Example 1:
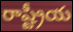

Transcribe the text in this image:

రాష్ట్రీయ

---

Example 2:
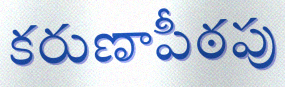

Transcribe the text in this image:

కరుణాపీఠపు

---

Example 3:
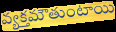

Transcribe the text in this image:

వ్యక్తమౌతుంటాయి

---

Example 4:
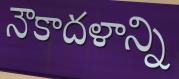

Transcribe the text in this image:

నౌకాదళాన్ని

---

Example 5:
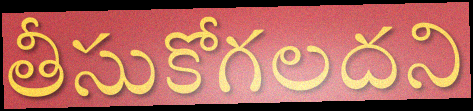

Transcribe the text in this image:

తీసుకోగలదని